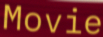
Movie